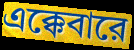
এক্কেবারে